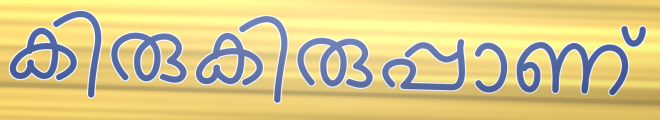
കിരുകിരുപ്പാണ്